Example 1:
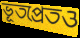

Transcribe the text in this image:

ভূতপ্রেতও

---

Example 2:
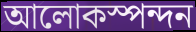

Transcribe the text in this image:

আলোকস্পন্দন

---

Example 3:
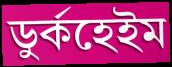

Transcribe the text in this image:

ডুর্কহেইম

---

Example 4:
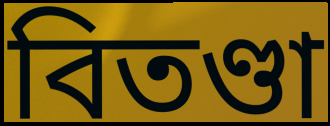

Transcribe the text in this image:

বিতণ্ডা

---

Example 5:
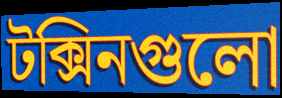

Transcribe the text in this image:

টক্সিনগুলো